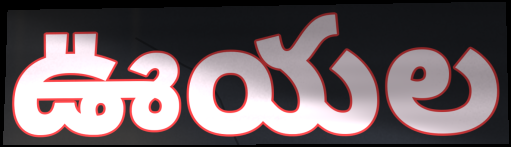
ఊయల